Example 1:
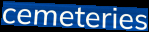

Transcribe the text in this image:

cemeteries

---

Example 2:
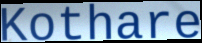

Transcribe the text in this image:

Kothare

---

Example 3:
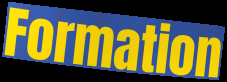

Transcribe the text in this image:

Formation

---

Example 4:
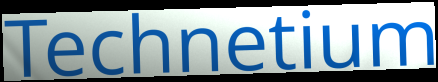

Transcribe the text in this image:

Technetium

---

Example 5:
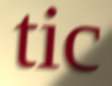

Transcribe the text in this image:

tic